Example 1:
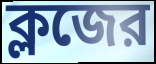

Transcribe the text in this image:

ক্লজের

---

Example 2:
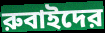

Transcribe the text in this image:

রুবাইদের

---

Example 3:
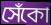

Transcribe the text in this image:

সেঁকো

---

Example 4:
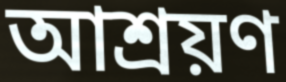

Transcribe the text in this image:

আশ্রয়ণ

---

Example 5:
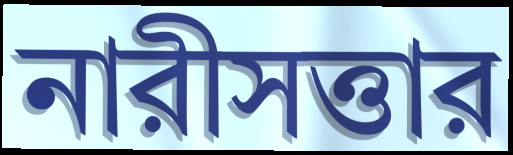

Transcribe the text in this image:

নারীসত্তার